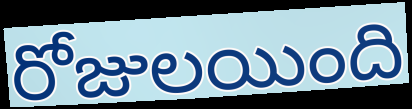
రోజులయింది